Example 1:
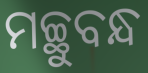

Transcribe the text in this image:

ମଚ୍ଛୁବନ୍ଧ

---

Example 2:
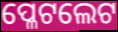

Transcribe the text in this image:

ପ୍ଳେଟଲେଟ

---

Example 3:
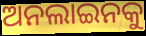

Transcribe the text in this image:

ଅନଲାଇନକୁ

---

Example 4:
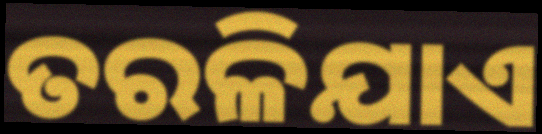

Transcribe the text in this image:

ତରଳିଯାଏ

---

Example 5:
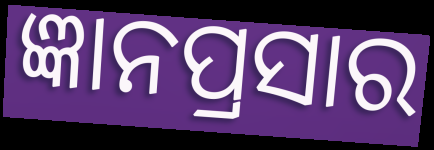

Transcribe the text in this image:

ଜ୍ଞାନପ୍ରସାର